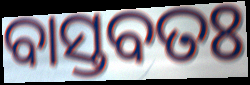
ବାସ୍ତବତଃ